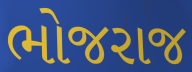
ભોજરાજ